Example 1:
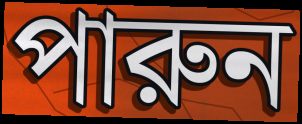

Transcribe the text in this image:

পারুন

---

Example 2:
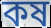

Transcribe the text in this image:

কষ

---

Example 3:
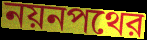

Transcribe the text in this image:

নয়নপথের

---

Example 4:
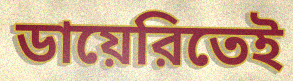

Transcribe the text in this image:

ডায়েরিতেই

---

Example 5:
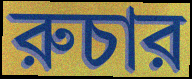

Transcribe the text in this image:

রুচার